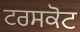
ਟਰਸਕੋਟ